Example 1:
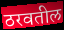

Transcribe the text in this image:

ठरवतील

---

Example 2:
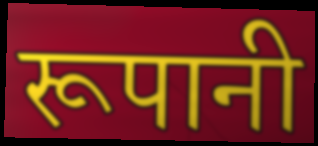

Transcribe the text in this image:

रूपानी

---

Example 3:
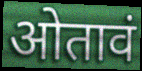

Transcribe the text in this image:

ओतावं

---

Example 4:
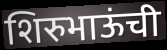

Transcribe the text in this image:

शिरुभाऊंची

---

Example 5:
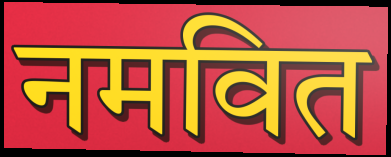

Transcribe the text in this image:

नमवित